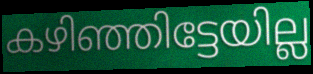
കഴിഞ്ഞിട്ടേയില്ല